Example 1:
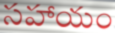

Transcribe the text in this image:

సహాయం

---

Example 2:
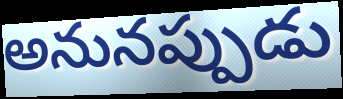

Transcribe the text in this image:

అనునప్పుడు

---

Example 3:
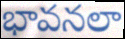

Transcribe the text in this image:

భావనలా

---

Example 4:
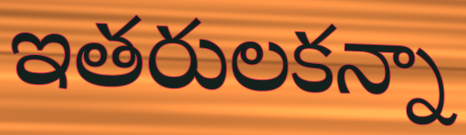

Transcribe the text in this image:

ఇతరులకన్నా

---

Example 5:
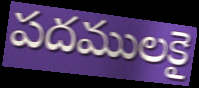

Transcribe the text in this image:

పదములకై